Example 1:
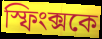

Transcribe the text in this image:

স্ফিংক্সকে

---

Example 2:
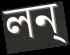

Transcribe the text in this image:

লন্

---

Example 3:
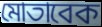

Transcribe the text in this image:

মোতাবেক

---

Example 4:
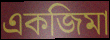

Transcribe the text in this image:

একজিমা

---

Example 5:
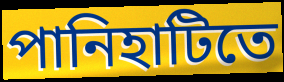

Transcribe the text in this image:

পানিহাটিতে